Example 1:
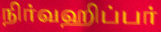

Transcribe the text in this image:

நிர்வஹிப்பர்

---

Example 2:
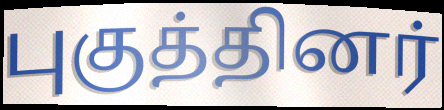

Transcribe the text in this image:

புகுத்தினர்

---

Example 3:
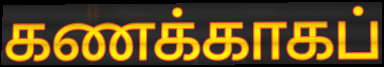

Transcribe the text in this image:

கணக்காகப்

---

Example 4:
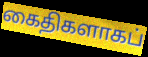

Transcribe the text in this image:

கைதிகளாகப்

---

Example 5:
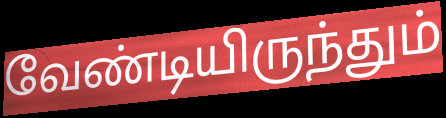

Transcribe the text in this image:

வேண்டியிருந்தும்